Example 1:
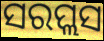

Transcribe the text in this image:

ସରପ୍ଲସ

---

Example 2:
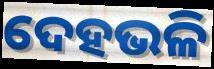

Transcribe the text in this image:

ଦେହଭଳି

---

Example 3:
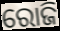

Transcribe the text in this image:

ରୋଜି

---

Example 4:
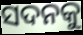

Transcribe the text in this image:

ସଦନକୁ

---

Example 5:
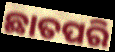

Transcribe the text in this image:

ଛାତପରି